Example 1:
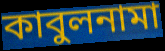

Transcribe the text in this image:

কাবুলনামা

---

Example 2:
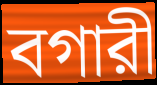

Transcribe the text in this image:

বগারী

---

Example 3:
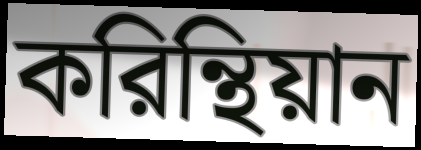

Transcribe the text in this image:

করিন্থিয়ান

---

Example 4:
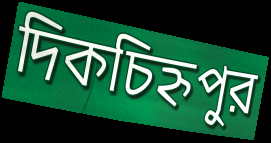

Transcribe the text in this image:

দিকচিহ্নপুর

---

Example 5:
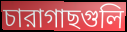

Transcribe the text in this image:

চারাগাছগুলি